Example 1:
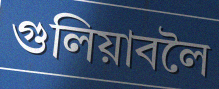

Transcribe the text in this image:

গুলিয়াবলৈ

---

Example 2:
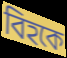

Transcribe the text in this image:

বিহকে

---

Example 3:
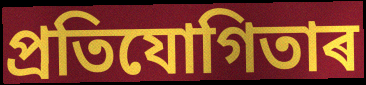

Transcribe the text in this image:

প্ৰতিযোগিতাৰ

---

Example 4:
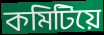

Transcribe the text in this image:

কমিটিয়ে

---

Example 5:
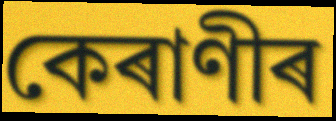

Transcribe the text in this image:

কেৰাণীৰ